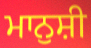
ਮਾਨੁਸ਼ੀ